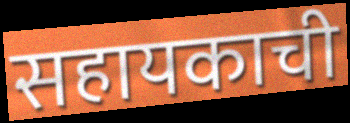
सहायकाची